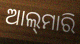
ଆଲ୍‌ମାରି